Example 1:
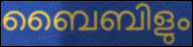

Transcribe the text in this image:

ബൈബിളും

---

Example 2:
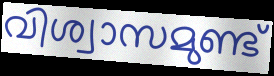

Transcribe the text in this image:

വിശ്വാസമുണ്ട്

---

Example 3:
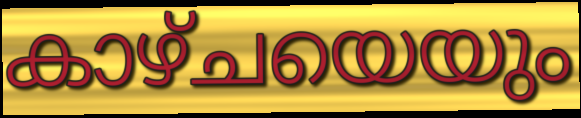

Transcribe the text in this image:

കാഴ്ചയെയും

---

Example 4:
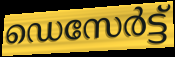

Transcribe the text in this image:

ഡെസേർട്ട്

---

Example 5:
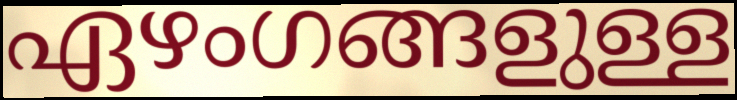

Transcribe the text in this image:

ഏഴംഗങ്ങളുള്ള